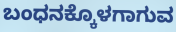
ಬಂಧನಕ್ಕೊಳಗಾಗುವ